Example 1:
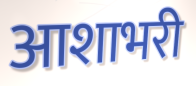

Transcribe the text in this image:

आशाभरी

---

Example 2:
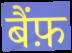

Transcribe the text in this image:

बैंफ़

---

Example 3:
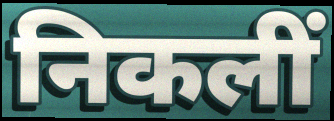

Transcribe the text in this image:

निकलीं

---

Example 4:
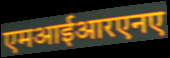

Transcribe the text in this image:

एमआईआरएनए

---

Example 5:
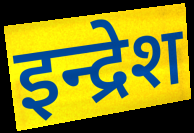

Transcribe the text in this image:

इन्द्रेश